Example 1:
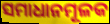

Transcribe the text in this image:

ସମାଧାନମୂଳକ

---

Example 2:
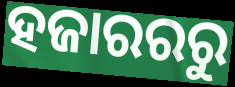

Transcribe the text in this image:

ହଜାରରରୁ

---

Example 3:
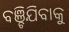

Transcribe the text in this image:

ବଞ୍ଚିଯିବାକୁ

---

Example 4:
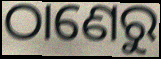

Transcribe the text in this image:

ଠାଣେରୁ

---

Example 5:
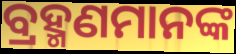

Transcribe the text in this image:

ବ୍ରହ୍ମଣମାନଙ୍କ